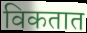
विकतात